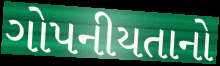
ગોપનીયતાનો